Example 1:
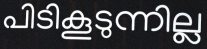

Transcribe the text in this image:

പിടികൂടുന്നില്ല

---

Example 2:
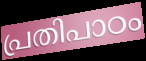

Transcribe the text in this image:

പ്രതിപാഠം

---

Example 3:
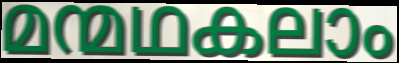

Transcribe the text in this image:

മന്മഥകലാം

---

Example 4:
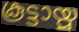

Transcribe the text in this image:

കൂട്ടായ്മ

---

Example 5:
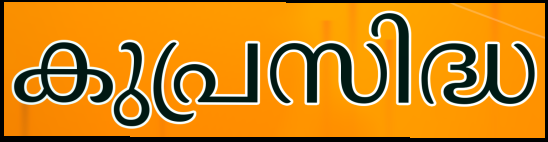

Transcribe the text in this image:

കുപ്രസിദ്ധ